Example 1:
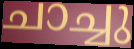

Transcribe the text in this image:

ചാച്ചു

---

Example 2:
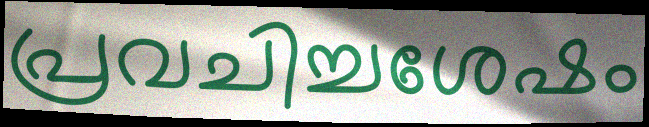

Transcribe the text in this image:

പ്രവചിച്ചശേഷം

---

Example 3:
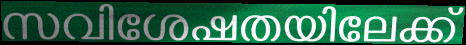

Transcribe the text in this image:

സവിശേഷതയിലേക്ക്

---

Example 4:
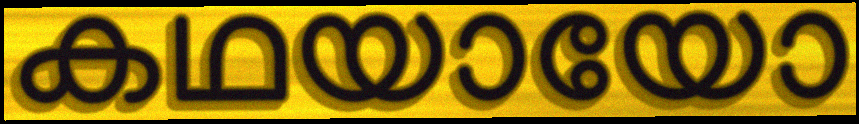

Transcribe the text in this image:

കഥയായോ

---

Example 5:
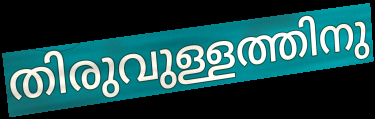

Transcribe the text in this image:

തിരുവുള്ളത്തിനു